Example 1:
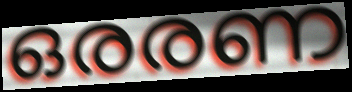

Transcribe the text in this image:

ഒരരണ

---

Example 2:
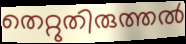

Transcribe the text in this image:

തെറ്റുതിരുത്തൽ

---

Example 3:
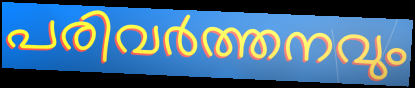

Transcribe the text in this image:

പരിവർത്തനവും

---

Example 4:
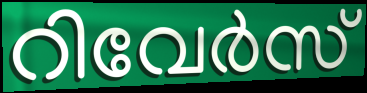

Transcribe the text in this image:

റിവേർസ്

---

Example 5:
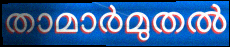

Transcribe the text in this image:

താമാർമുതൽ